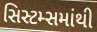
સિસ્ટમ્સમાંથી